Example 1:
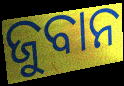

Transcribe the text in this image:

ଜୁବାନ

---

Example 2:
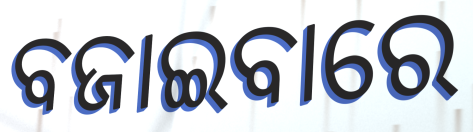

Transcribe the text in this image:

ବଜାଇବାରେ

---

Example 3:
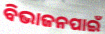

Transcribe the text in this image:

ବିଭାଜନପାଇଁ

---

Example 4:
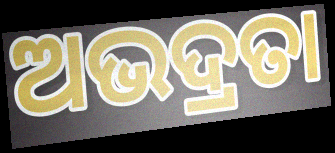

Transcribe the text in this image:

ଅଭଦ୍ରତା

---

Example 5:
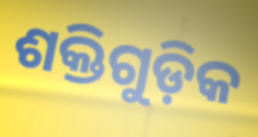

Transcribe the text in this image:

ଶକ୍ତିଗୁଡ଼ିକ